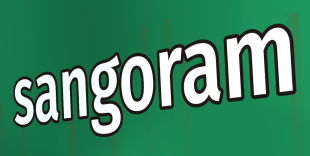
sangoram